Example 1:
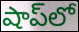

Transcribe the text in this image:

షాప్‌లో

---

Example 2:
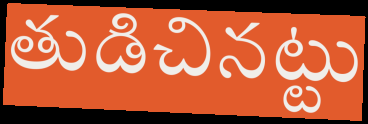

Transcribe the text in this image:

తుడిచినట్టు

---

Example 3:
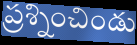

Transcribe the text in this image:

ప్రశ్నించిండు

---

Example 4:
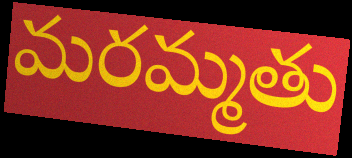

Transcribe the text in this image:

మరమ్మతు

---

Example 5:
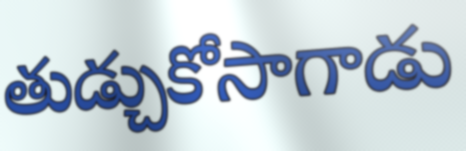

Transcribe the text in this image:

తుడ్చుకోసాగాడు